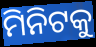
ମିନିଟକୁ